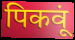
पिकवूं